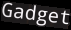
Gadget